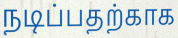
நடிப்பதற்காக